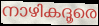
നാഴികദൂരെ